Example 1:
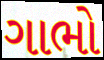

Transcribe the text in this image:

ગાભો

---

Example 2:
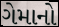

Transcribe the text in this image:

ગેમાનો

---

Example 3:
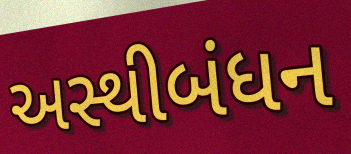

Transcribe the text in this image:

અસ્થીબંધન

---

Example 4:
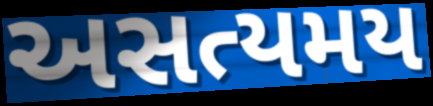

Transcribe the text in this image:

અસત્યમય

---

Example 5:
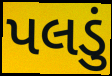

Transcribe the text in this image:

પલડું